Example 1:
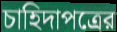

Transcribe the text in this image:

চাহিদাপত্রের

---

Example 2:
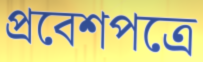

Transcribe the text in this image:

প্রবেশপত্রে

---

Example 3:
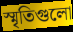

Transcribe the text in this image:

স্মৃতিগুলো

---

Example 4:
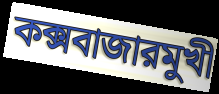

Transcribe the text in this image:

কক্সবাজারমুখী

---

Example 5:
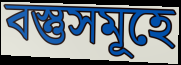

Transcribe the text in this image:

বস্তুসমূহে